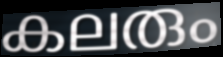
കലരും